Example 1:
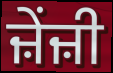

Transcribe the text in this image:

ਜ਼ੇਂਜ਼ੀ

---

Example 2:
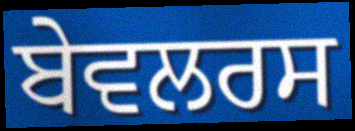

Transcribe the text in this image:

ਬੇਵਲਰਸ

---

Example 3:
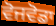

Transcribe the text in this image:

ਵੋਜਵੋਡਾ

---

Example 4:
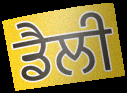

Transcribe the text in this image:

ਡੈਲੀ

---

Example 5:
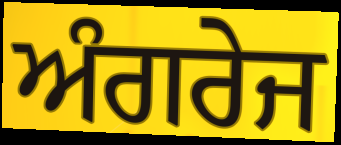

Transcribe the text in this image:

ਅੰਗਰੇਜ